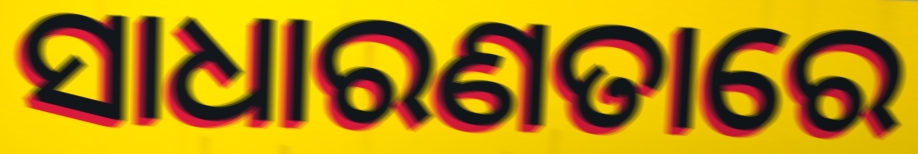
ସାଧାରଣତାରେ